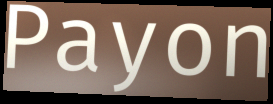
Payon